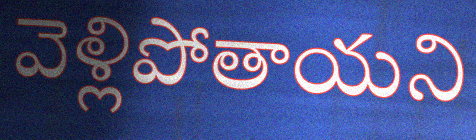
వెళ్లిపోతాయని